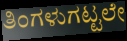
ತಿಂಗಳುಗಟ್ಟಲೇ